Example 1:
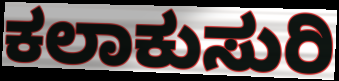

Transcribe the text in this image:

ಕಲಾಕುಸುರಿ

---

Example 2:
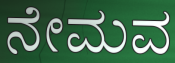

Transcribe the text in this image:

ನೇಮವ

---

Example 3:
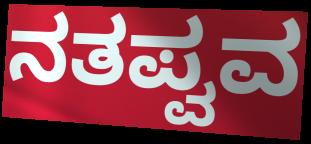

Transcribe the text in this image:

ನತಪ್ವವ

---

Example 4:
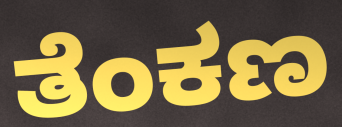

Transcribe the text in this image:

ತೆಂಕಣ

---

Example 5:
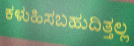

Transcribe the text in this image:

ಕಳುಹಿಸಬಹುದಿತ್ತಲ್ಲ